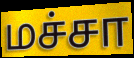
மச்சா